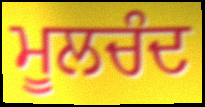
ਮੂਲਚੰਦ